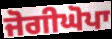
ਜੋਗੀਘੋਪਾ